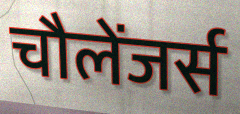
चौलेंजर्स